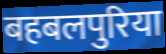
बहबलपुरिया